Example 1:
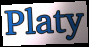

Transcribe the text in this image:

Platy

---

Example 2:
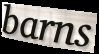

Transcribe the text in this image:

barns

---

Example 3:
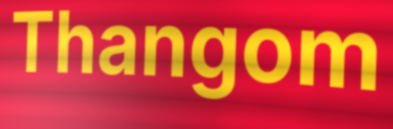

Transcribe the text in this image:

Thangom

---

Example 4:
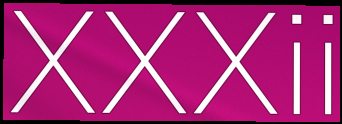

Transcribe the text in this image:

XXXii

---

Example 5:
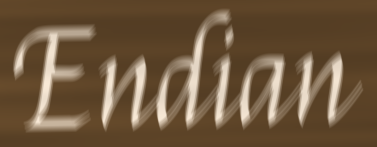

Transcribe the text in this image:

Endian